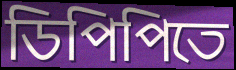
ডিপিপিতে